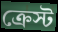
ক্রেস্ট